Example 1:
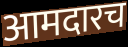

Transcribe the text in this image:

आमदारच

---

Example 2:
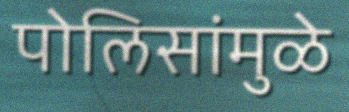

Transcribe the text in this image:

पोलिसांमुळे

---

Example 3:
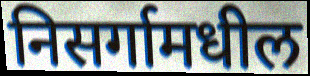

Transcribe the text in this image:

निसर्गामधील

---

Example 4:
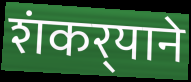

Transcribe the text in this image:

शंकर्‍याने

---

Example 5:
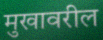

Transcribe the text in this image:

मुखावरील